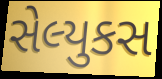
સેલ્યુકસ